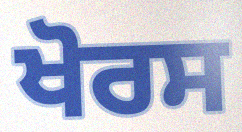
ਖੋਰਸ